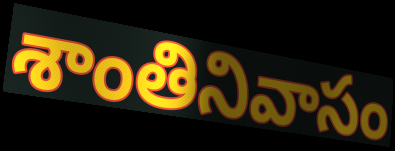
శాంతినివాసం